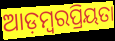
ଆଡ଼ମ୍ବରପ୍ରିୟତା